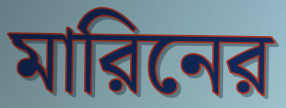
মারিনের